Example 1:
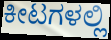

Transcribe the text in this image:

ಕೀಟಗಳಲ್ಲಿ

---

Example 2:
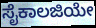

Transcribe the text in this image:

ಸೈಕಾಲಜಿಯೇ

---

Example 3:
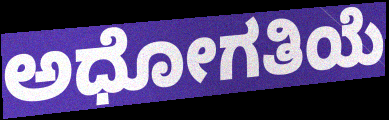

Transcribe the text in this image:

ಅಧೋಗತಿಯೆ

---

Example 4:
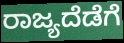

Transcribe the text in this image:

ರಾಜ್ಯದೆಡೆಗೆ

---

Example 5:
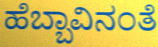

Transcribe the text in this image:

ಹೆಬ್ಬಾವಿನಂತೆ